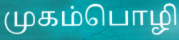
முகம்பொழி